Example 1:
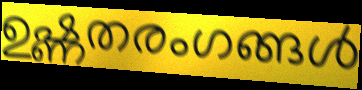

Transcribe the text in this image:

ഉഷ്ണതരംഗങ്ങൾ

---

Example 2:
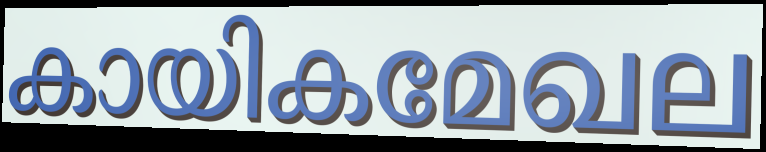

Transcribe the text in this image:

കായികമേഖല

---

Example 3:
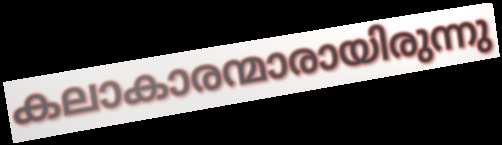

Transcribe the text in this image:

കലാകാരന്മാരായിരുന്നു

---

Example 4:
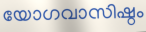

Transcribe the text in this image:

യോഗവാസിഷ്ഠം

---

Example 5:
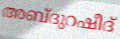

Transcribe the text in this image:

അബ്ദുറഷീദ്